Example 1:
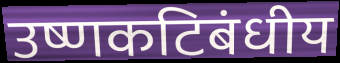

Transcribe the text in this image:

उष्णकटिबंधीय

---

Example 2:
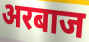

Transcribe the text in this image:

अरबाज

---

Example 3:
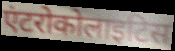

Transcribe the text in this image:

एंटरोकोलाइटिस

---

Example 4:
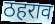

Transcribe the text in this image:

ठहराव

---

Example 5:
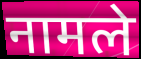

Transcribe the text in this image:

नामले